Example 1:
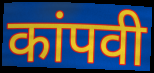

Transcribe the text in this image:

कांपवी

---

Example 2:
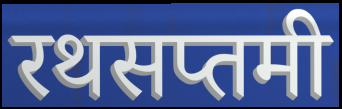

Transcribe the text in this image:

रथसप्तमी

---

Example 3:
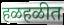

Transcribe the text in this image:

हळहळीत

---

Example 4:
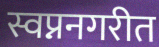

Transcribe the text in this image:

स्वप्ननगरीत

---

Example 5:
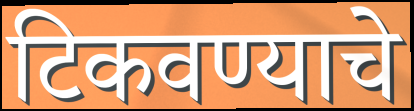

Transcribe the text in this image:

टिकवण्याचे